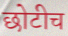
छोटीच